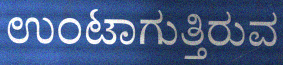
ಉಂಟಾಗುತ್ತಿರುವ